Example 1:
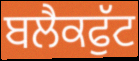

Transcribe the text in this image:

ਬਲੈਕਫੁੱਟ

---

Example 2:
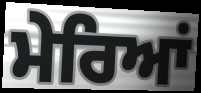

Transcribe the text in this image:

ਮੇਰਿਆਂ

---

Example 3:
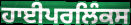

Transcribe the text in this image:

ਹਾਈਪਰਲਿੰਕਸ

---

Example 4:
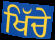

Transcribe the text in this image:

ਖਿੱਚੇ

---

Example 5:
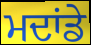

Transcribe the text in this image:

ਮਦਾਂਡੇ